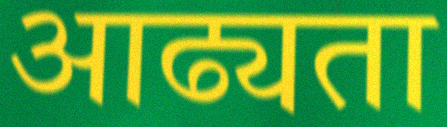
आढ्यता